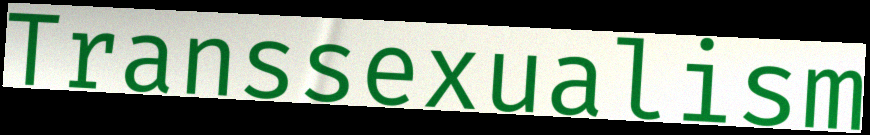
Transsexualism